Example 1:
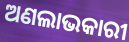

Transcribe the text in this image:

ଅଣଲାଭକାରୀ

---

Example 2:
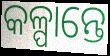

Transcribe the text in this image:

କଳ୍ପାନ୍ତେ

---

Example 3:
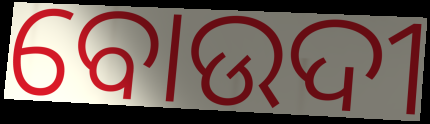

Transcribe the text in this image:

ବୋଉଦୀ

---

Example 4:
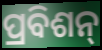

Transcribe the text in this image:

ପ୍ରବିଶନ୍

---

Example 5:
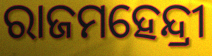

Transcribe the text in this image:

ରାଜମହେନ୍ଦ୍ରୀ